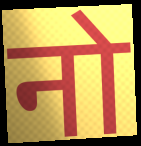
नो